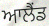
ਆਲੈਂਡ